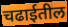
चढाईतील